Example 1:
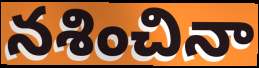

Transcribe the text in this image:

నశించినా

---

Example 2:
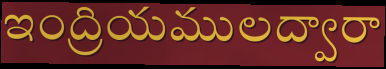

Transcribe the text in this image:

ఇంద్రియములద్వారా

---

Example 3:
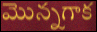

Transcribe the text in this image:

మొన్నగాక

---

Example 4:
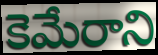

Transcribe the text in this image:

కెమేరాని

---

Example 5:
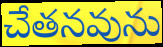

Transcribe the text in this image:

చేతనవును